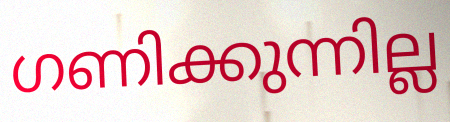
ഗണിക്കുന്നില്ല